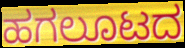
ಹಗಲೂಟದ